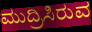
ಮುದ್ರಿಸಿರುವ